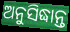
ଅନୁସିଦ୍ଧାନ୍ତ